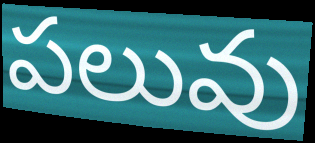
పలువు